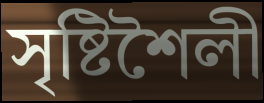
সৃষ্টিশৈলী